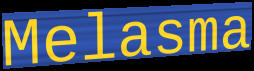
Melasma